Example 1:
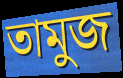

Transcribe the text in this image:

তামুজ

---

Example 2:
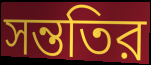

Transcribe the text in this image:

সন্ততির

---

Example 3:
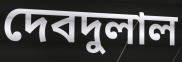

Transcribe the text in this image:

দেবদুলাল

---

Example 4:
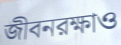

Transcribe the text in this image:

জীবনরক্ষাও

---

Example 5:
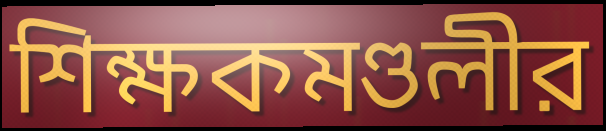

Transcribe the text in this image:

শিক্ষকমণ্ডলীর